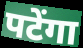
पटेंगा